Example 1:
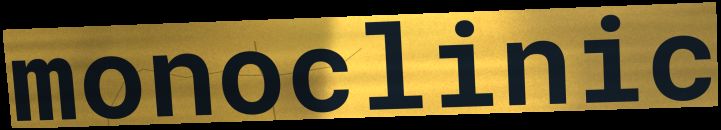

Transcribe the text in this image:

monoclinic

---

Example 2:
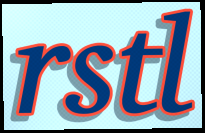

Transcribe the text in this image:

rstl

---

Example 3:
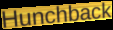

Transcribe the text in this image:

Hunchback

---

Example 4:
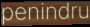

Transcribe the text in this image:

penindru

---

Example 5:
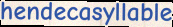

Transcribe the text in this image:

hendecasyllable